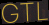
GTL